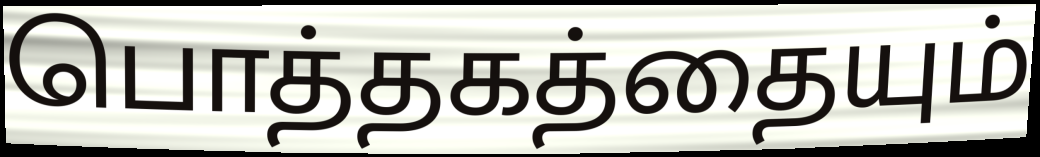
பொத்தகத்தையும்